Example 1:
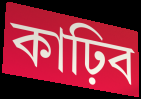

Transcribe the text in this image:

কাঢ়িব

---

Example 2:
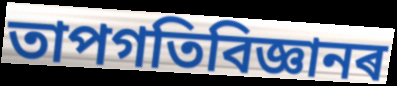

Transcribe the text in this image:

তাপগতিবিজ্ঞানৰ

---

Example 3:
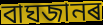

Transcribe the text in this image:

বাঘজানৰ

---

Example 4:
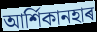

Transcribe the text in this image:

আৰ্শিকানহাৰ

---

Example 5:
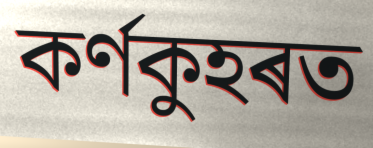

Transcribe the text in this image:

কৰ্ণকুহৰত